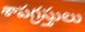
శాపగ్రస్తులు